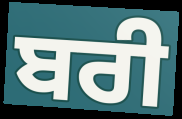
ਬਰੀ